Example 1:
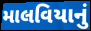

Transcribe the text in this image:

માલવિયાનું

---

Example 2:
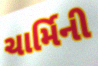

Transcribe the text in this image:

ચાર્મિની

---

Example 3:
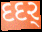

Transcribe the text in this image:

દદર્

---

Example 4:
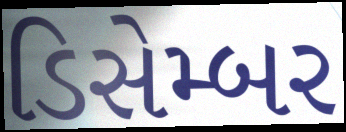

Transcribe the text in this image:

ડિસેમ્બર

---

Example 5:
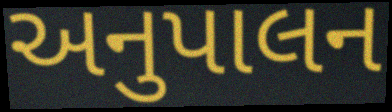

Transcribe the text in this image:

અનુપાલન